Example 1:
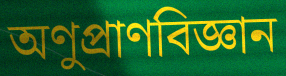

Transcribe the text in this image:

অণুপ্রাণবিজ্ঞান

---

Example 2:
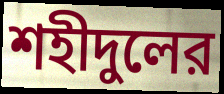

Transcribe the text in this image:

শহীদুলের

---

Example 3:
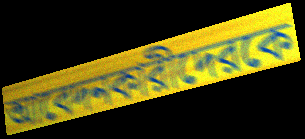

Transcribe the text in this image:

আবেদনকারীদেরকে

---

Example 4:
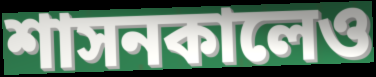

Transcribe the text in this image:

শাসনকালেও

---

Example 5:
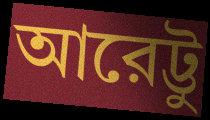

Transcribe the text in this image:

আরেট্টু